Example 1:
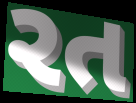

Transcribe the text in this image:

રત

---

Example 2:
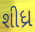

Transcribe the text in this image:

શીધ્ર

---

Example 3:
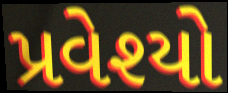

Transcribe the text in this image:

પ્રવેશ્યો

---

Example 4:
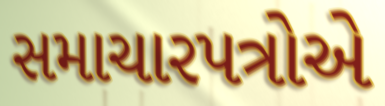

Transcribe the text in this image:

સમાચારપત્રોએ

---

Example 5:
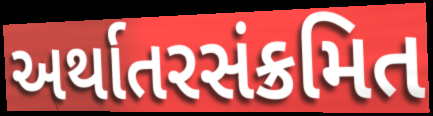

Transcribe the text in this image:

અર્થાતરસંક્રમિત